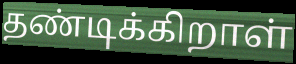
தண்டிக்கிறாள்